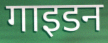
गाइडन